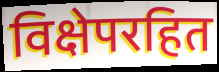
विक्षेपरहित